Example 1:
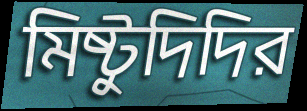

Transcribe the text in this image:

মিষ্টুদিদির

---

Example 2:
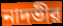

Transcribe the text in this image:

নাদভীর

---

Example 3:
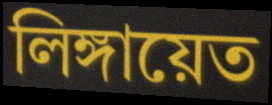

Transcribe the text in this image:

লিঙ্গায়েত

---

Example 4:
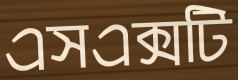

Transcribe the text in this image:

এসএক্সটি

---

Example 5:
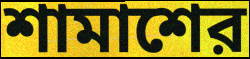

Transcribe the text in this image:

শামাশের